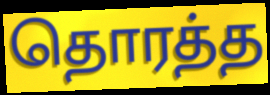
தொரத்த